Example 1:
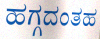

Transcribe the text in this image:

ಹಗ್ಗದಂತಹ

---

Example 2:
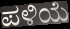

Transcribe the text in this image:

ಪಳಿಯೆ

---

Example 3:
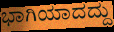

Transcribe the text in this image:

ಭಾಗಿಯಾದದ್ದು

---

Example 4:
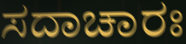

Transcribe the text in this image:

ಸದಾಚಾರಃ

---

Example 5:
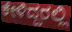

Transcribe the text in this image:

ಕೇಳಿದ್ದರಲ್ಲಿ